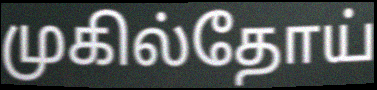
முகில்தோய்